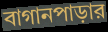
বাগানপাড়ার